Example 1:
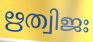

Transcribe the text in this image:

ഋത്വിജഃ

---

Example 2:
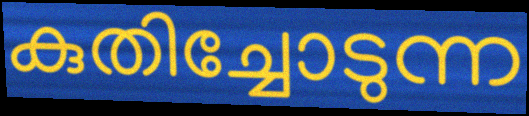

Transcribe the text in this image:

കുതിച്ചോടുന്ന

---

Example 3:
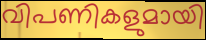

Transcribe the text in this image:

വിപണികളുമായി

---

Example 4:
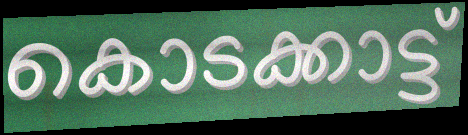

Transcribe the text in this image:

കൊടക്കാട്ട്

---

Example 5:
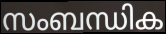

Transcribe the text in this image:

സംബന്ധിക